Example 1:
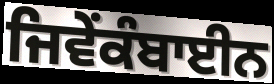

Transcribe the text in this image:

ਜਿਵੇਂਕੰਬਾਈਨ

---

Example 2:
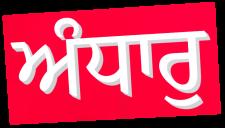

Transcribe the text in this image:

ਅੰਧਾਰੁ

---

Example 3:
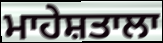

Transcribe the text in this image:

ਮਾਹੇਸ਼ਤਾਲਾ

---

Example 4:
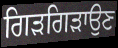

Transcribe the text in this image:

ਗਿੜਗਿੜਾਉਣ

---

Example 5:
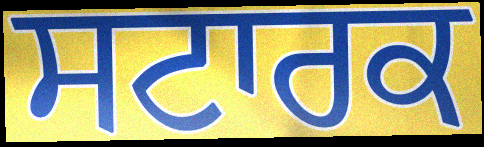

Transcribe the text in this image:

ਸਟਾਰਕ